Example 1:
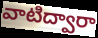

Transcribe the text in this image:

వాటిద్వారా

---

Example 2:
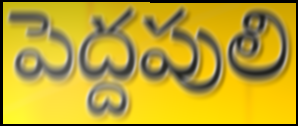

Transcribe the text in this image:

పెద్దపులి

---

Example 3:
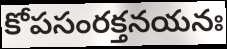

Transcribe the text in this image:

కోపసంరక్తనయనః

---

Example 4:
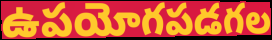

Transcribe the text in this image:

ఉపయోగపడగల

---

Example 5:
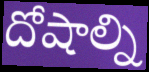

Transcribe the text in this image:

దోషాల్ని